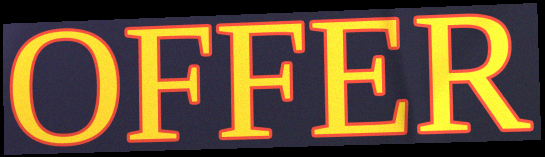
OFFER